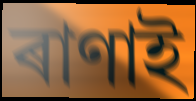
ৰাণাই